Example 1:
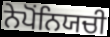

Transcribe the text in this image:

ਨੇਪੋਂਨਿਯਚੀ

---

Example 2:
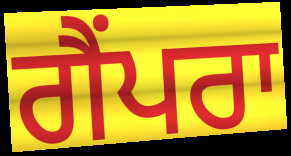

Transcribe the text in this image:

ਗੈਂਪਰਾ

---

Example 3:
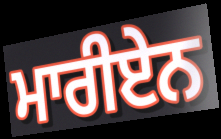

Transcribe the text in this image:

ਮਾਰੀਏਨ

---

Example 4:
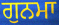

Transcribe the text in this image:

ਗੁਨਮਾ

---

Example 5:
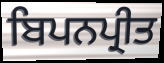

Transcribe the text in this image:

ਬਿਪਨਪ੍ਰੀਤ